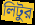
লিটুর